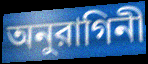
অনুরাগিনী